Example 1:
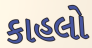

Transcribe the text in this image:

કાહલો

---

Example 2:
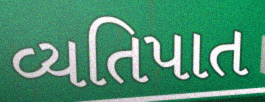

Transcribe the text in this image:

વ્યતિપાત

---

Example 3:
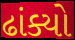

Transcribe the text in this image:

ઢાંક્યો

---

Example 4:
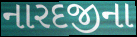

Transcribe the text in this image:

નારદજીના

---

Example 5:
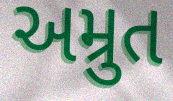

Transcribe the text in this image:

અમ્રુત